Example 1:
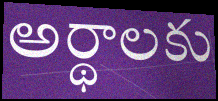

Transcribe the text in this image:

అర్థాలకు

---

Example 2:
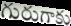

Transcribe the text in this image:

గురుగాకు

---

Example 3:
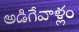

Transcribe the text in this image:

అడిగేవాళ్లం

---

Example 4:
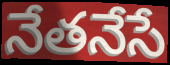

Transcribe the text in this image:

నేతనేసే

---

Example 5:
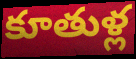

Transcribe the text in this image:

కూతుళ్ల